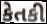
કેતકી